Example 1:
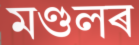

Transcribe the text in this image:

মণ্ডলৰ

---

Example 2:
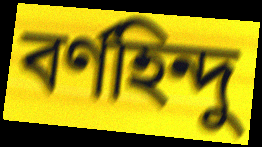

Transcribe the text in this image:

বৰ্ণহিন্দু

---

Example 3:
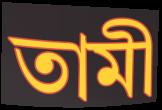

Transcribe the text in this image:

তামী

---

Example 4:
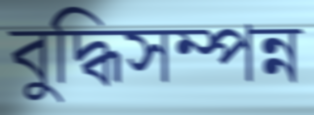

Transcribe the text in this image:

বুদ্ধিসম্পন্ন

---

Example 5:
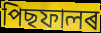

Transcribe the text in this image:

পিছফালৰ